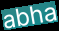
abha